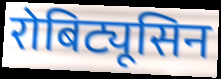
रोबिट्यूसिन